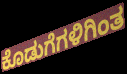
ಕೊಡುಗೆಗಳಿಗಿಂತ